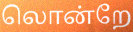
லொன்றே